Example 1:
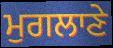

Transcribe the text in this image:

ਮੁਗਲਾਣੇ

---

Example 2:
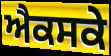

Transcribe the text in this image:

ਐਕਸਕੇ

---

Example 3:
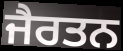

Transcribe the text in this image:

ਜੈਰਤਨ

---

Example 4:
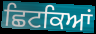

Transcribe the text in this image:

ਛਿਟਕਿਆਂ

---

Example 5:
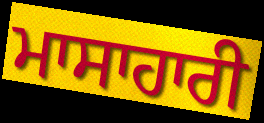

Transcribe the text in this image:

ਮਾਸਾਹਾਰੀ